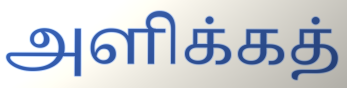
அளிக்கத்